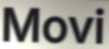
Movi